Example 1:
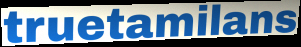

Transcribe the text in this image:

truetamilans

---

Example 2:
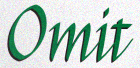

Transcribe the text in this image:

Omit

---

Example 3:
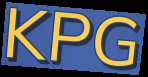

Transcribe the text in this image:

KPG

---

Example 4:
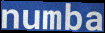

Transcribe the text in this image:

numba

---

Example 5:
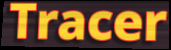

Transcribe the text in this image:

Tracer